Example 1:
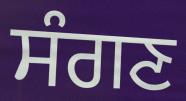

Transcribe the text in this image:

ਸੰਗਣ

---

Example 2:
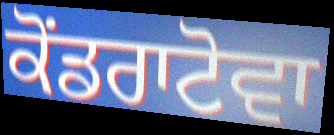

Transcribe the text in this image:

ਕੋਂਡਰਾਟੋਵਾ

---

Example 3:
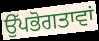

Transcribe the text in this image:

ਉੱਪਭੋਗਤਾਵਾਂ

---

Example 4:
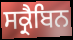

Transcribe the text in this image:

ਸਕ੍ਰੈਬਿਨ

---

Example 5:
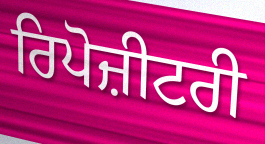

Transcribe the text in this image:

ਰਿਪੋਜ਼ੀਟਰੀ